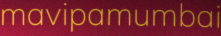
mavipamumbai